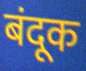
बंदूक